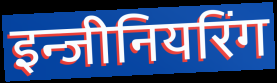
इन्जीनियरिंग